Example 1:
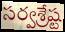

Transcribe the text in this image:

సర్వశ్రేష్ట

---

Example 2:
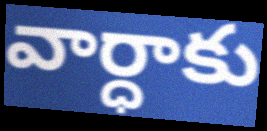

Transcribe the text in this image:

వార్ధాకు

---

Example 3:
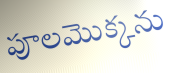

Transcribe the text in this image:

పూలమొక్కను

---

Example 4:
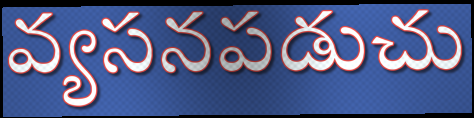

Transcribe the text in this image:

వ్యసనపడుచు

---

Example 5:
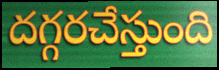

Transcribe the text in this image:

దగ్గరచేస్తుంది